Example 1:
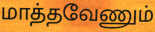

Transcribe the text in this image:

மாத்தவேணும்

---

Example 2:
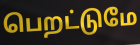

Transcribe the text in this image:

பெறட்டுமே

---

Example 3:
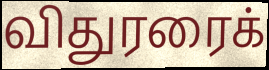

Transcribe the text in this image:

விதுரரைக்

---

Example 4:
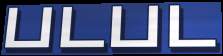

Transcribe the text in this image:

படபட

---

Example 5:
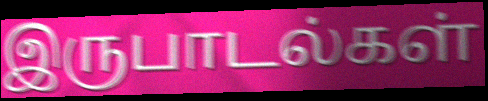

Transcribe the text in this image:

இருபாடல்கள்